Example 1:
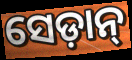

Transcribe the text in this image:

ସେଡ଼ାନ୍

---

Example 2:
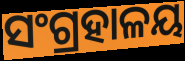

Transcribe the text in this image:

ସଂଗ୍ରହାଳୟ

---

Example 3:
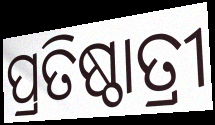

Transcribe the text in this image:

ପ୍ରତିଷ୍ଠାତ୍ରୀ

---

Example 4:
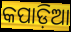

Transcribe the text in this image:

କପାଡ଼ିଆ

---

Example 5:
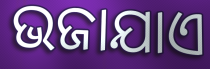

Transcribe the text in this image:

ଭଜାଯାଏ